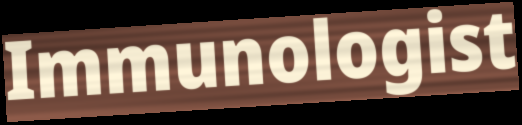
Immunologist